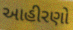
આહીરણો